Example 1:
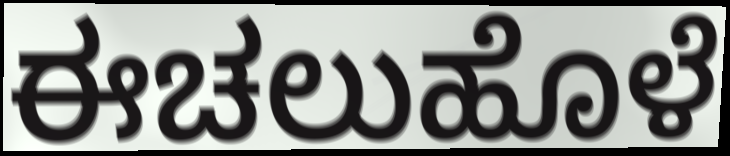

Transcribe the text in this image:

ಈಚಲುಹೊಳೆ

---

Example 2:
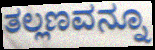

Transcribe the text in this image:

ತಲ್ಲಣವನ್ನೂ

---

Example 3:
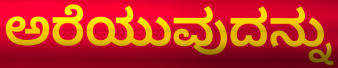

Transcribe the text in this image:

ಅರೆಯುವುದನ್ನು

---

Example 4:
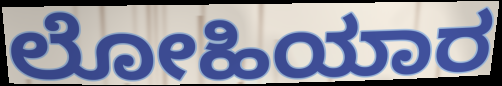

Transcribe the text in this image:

ಲೋಹಿಯಾರ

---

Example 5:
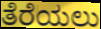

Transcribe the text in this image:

ತೆರೆಯಲು